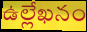
ఉల్లేఖనం